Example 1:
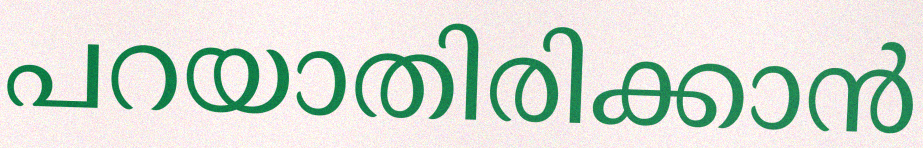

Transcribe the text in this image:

പറയാതിരിക്കാൻ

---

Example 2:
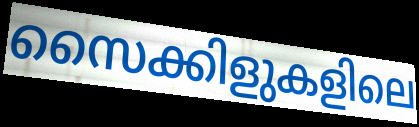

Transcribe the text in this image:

സൈക്കിളുകളിലെ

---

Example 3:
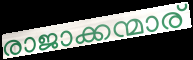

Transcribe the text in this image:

രാജാക്കന്മാര്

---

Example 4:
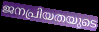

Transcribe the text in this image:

ജനപ്രിയതയുടെ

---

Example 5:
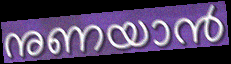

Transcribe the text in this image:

നുണയാൻ